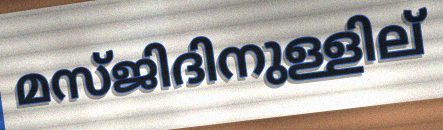
മസ്ജിദിനുള്ളില്